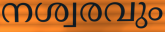
നശ്വരവും